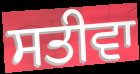
ਸਤੀਵਾ